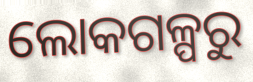
ଲୋକଗଳ୍ପରୁ